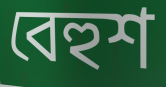
বেহুশ